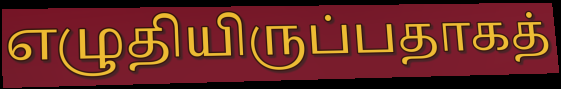
எழுதியிருப்பதாகத்